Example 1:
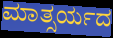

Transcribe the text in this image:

ಮಾತ್ಸರ್ಯದ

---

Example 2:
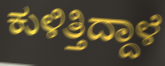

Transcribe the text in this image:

ಕುಳಿತ್ತಿದ್ದಾಳೆ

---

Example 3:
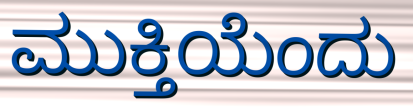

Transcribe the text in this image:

ಮುಕ್ತಿಯೆಂದು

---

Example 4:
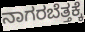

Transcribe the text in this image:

ನಾಗರಬೆತ್ತಕ್ಕೆ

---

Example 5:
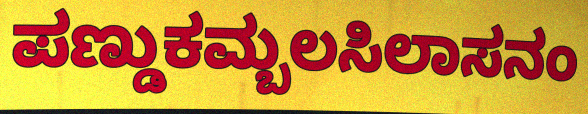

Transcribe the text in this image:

ಪಣ್ಡುಕಮ್ಬಲಸಿಲಾಸನಂ